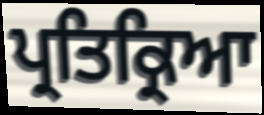
ਪ੍ਰਤਿਕ੍ਰਿਆ